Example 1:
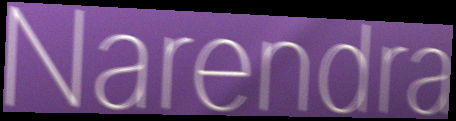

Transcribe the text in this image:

Narendra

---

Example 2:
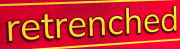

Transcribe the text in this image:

retrenched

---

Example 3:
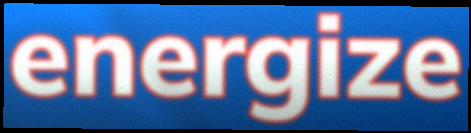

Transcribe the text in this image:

energize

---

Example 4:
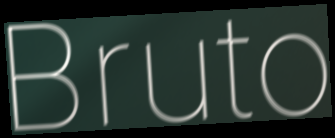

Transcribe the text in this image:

Bruto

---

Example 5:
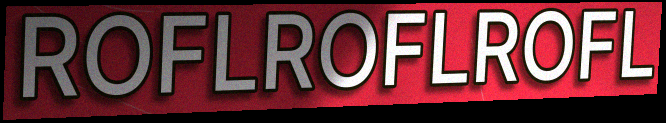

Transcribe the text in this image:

ROFLROFLROFL